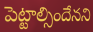
పెట్టాల్సిందేనని